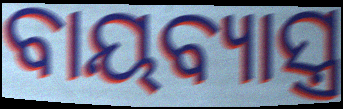
ବାୟବ୍ୟାସ୍ତ୍ର